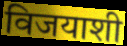
विजयाशी